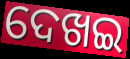
ଦେଖଇ